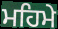
ਮਹਿਮੇ